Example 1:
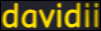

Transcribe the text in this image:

davidii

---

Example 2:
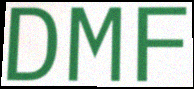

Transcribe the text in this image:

DMF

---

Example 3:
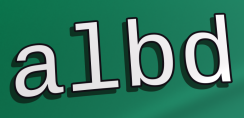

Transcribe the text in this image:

albd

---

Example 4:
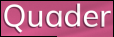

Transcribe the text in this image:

Quader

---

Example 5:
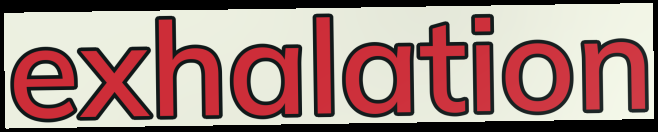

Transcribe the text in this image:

exhalation